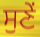
ਸੁਣੇਂ